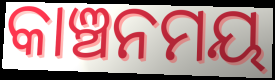
କାଞ୍ଚନମୟ